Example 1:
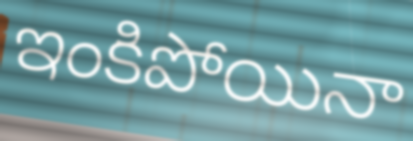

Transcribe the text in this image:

ఇంకిపోయినా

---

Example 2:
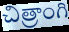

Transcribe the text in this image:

చిత్రాంగి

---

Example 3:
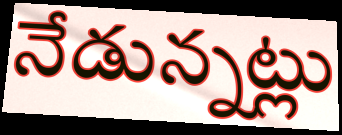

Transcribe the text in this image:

నేడున్నట్లు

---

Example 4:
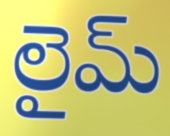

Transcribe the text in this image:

లైమ్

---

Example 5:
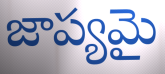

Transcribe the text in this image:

జాప్యమై